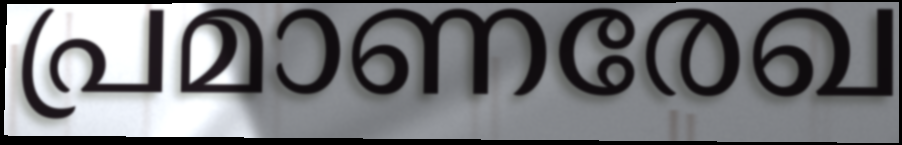
പ്രമാണരേഖ